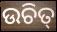
ଉଚିତ୍